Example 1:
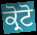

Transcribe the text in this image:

ਕ੍ਰੋਟੋ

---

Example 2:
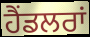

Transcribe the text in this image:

ਹੈਂਡਲਰਾਂ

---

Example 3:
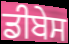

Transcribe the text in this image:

ਡੀਬੇਸ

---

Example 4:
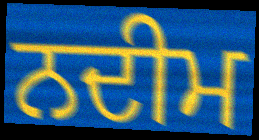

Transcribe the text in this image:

ਨਦੀਮ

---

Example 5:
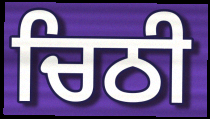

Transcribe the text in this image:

ਚਿਠੀ